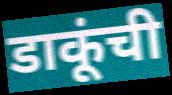
डाकूंची